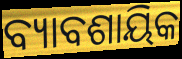
ବ୍ୟାବଶାୟିକ